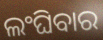
ଲଂଘିବାର